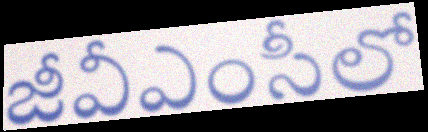
జీవీఎంసీలో